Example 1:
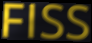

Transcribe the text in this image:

FISS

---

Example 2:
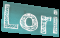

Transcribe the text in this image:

Lori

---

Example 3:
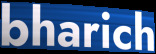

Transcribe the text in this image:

bharich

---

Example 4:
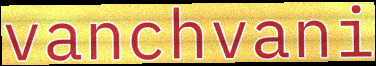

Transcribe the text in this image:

vanchvani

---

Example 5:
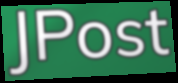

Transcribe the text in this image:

JPost